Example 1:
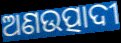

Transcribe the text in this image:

ଅଣଉତ୍ପାଦୀ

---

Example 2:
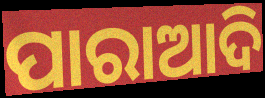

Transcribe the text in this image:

ପାରାଆଦି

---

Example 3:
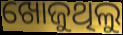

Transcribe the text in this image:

ଖୋଜୁଥିଲୁ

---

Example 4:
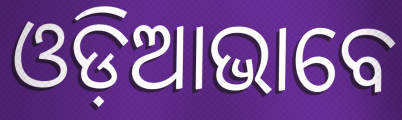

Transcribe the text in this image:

ଓଡ଼ିଆଭାବେ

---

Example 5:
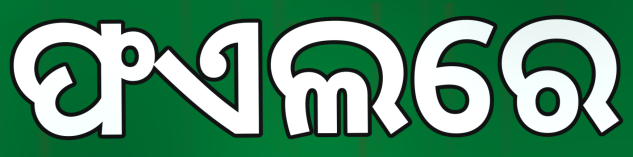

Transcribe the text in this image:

ଫଏଲରେ